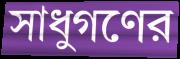
সাধুগণের